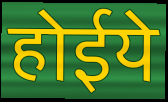
होईये